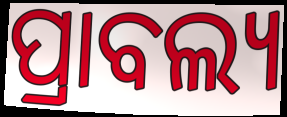
ପ୍ରାବଲ୍ୟ